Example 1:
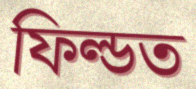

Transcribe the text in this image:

ফিল্ডত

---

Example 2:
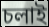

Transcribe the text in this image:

চলাই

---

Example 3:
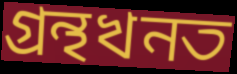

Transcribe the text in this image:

গ্ৰন্থখনত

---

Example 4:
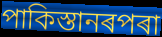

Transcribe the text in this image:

পাকিস্তানৰপৰা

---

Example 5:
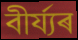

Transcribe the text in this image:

বীৰ্য্যৰ